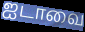
ஐடாவை